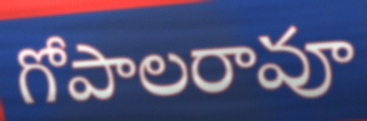
గోపాలరావూ